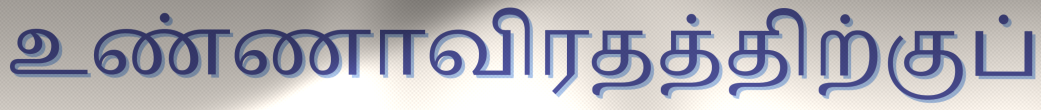
உண்ணாவிரதத்திற்குப்